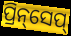
ପ୍ରିନ୍‌ସେପ୍